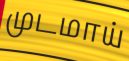
முடமாய்